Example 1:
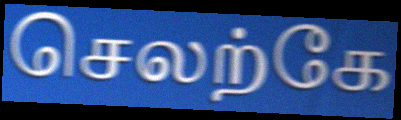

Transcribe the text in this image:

செலற்கே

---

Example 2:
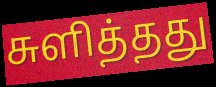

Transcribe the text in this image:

சுளித்தது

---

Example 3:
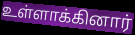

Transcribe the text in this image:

உள்ளாக்கினார்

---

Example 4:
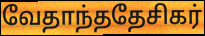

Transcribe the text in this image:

வேதாந்ததேசிகர்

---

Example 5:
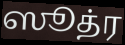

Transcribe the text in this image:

ஸூத்ர